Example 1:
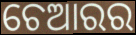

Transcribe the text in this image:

ଚେଆରର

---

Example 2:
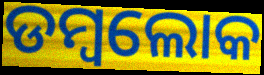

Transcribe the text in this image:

ଡମ୍ବଲୋକ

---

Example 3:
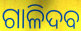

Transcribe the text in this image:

ଗାଳିଦବ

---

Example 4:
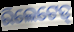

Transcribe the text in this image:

ରିଲେଟେଡ୍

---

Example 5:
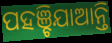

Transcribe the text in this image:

ପହଞ୍ଚିଯାଆନ୍ତି